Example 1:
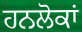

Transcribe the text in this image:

ਹਨਲੋਕਾਂ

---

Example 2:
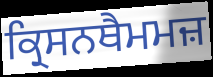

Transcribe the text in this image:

ਕ੍ਰਿਸਨਥੈਮਮਜ਼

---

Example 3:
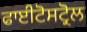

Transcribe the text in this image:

ਫਾਈਟੋਸਟ੍ਰੋਲ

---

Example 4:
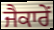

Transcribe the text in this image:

ਜੈਕਾਰੇਂ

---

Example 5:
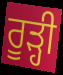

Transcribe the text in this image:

ਰੂੜ੍ਹੀ